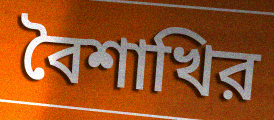
বৈশাখির